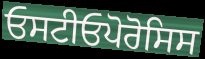
ਓਸਟੀਓਪੋਰੋਸਿਸ